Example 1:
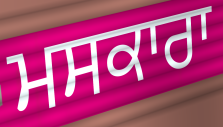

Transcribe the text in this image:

ਮਸਕਾਰਾ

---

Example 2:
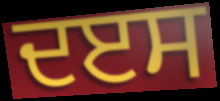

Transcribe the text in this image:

ਦੲਸ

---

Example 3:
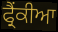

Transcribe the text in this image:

ਫ੍ਰੈਂਕੀਆ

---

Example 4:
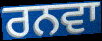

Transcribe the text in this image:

ਰਨਵਾ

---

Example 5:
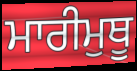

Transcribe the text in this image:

ਮਾਰੀਮੁਥੂ